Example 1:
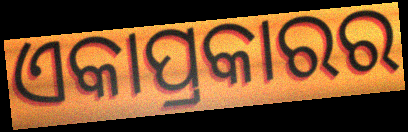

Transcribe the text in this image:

ଏକାପ୍ରକାରର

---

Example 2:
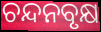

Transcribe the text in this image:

ଚନ୍ଦନବୃକ୍ଷ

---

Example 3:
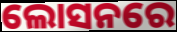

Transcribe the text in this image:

ଲୋସନରେ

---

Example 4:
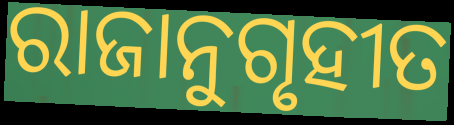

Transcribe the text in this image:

ରାଜାନୁଗୃହୀତ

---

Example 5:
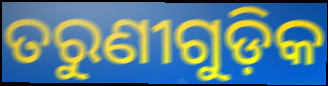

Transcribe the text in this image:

ତରୁଣୀଗୁଡ଼ିକ